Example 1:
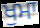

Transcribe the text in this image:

ਖੁਮਾ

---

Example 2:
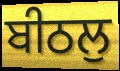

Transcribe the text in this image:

ਬੀਠਲੁ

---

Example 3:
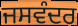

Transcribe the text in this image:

ਜਸਵੰਦਰ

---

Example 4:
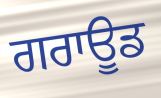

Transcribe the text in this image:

ਗਰਾਊਡ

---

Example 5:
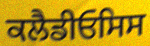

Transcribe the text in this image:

ਕਲੈਡੀਓਸਿਸ